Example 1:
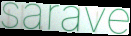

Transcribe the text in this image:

sarave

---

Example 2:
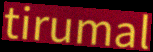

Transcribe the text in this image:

tirumal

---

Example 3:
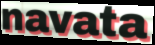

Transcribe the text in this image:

navata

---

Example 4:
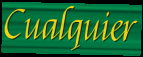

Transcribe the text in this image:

Cualquier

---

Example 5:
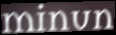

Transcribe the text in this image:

minun